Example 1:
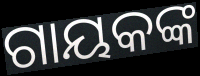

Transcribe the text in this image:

ଗାୟକଙ୍କ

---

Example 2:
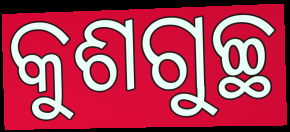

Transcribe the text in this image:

କୁଶଗୁଚ୍ଛ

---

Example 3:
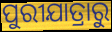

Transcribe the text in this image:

ପୁରୀଯାତ୍ରାରୁ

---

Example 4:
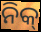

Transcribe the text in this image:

ନିକ୍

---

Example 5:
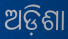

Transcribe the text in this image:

ଅଡ଼ିଶା